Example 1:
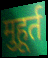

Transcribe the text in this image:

मुहूर्त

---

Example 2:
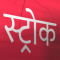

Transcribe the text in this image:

स्‍ट्रोक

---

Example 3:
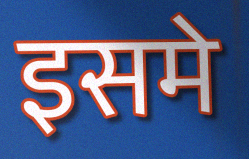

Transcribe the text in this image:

इसमे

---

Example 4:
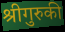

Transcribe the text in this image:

श्रीगुरुकी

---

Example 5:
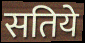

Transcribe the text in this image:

सतिये